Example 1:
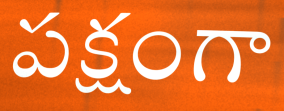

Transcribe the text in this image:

పక్షంగా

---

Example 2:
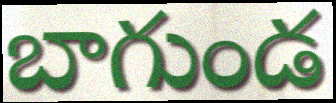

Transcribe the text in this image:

బాగుండ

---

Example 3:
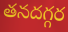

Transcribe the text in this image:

తనదగ్గర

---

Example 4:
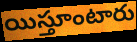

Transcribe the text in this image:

యిస్తూంటారు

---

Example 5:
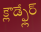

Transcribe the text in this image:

క్లౌడ్ఫ్లేర్